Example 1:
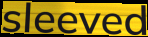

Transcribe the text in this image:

sleeved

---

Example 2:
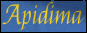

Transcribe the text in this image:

Apidima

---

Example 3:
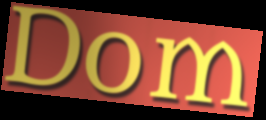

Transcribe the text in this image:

Dom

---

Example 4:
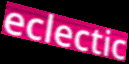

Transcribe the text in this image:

eclectic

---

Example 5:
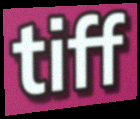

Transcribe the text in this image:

tiff